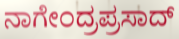
ನಾಗೇಂದ್ರಪ್ರಸಾದ್